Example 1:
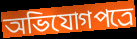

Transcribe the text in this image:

অভিযোগপত্রে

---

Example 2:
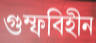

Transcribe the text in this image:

গুম্ফবিহীন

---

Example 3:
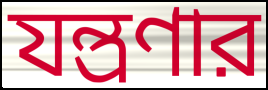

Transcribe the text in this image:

যন্ত্রণার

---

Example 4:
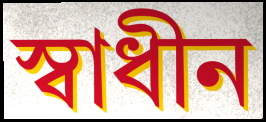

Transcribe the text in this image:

স্বাধীন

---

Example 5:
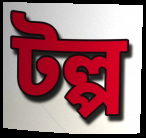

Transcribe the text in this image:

টল্প